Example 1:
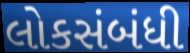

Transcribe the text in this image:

લોકસંબંધી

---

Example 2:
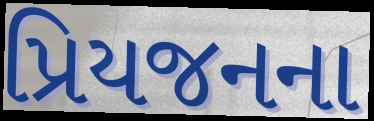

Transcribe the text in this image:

પ્રિયજનના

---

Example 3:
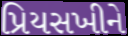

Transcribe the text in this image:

પ્રિયસખીને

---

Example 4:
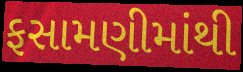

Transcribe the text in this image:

ફસામણીમાંથી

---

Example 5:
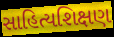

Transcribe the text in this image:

સાહિત્યશિક્ષણ